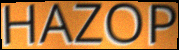
HAZOP